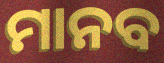
ମାନବ